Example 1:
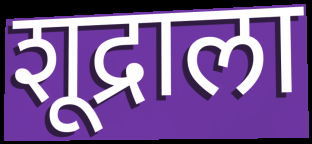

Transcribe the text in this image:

शूद्राला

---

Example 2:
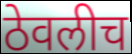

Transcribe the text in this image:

ठेवलीच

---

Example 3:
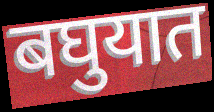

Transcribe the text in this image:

बघुयात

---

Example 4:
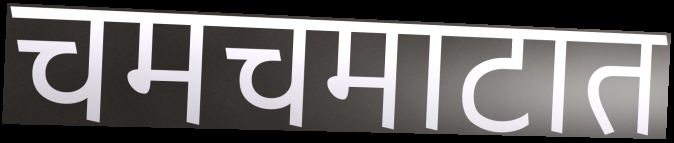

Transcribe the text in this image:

चमचमाटात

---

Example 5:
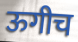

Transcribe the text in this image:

ऊगीच